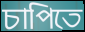
চাপিতে